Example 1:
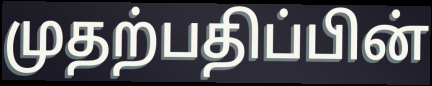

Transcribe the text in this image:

முதற்பதிப்பின்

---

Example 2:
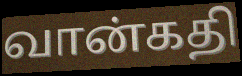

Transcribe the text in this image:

வான்கதி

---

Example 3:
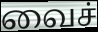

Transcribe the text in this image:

வைச்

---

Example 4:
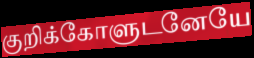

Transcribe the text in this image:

குறிக்கோளுடனேயே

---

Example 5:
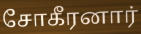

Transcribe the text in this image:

சோகீரனார்